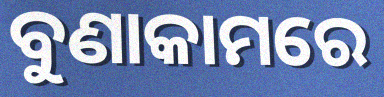
ବୁଣାକାମରେ